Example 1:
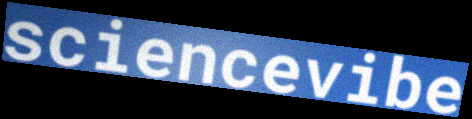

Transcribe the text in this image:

sciencevibe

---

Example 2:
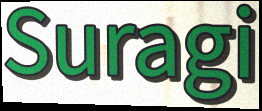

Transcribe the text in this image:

Suragi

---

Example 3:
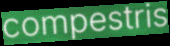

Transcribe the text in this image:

compestris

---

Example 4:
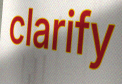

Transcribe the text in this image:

clarify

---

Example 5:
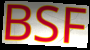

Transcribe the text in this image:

BSF